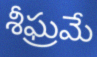
శీఘ్రమే